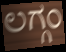
ಲಗ್ಗಂ